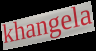
khangela